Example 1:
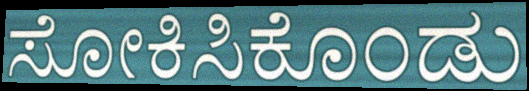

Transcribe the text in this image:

ಸೋಕಿಸಿಕೊಂಡು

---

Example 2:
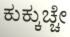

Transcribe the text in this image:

ಕುಕ್ಕುಚ್ಚೇ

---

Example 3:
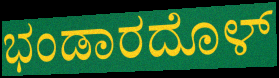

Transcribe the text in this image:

ಭಂಡಾರದೊಳ್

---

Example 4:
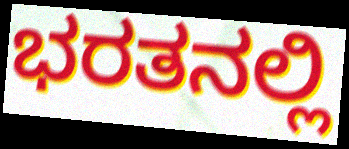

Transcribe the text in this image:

ಭರತನಲ್ಲಿ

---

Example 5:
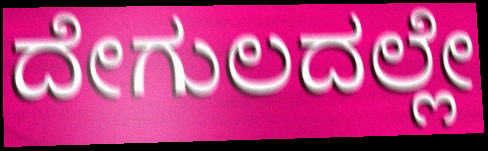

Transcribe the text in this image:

ದೇಗುಲದಲ್ಲೇ